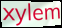
xylem